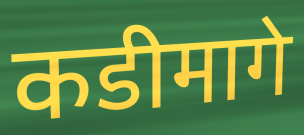
कडीमागे